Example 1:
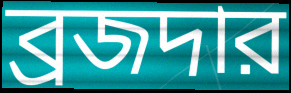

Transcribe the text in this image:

ব্রজদার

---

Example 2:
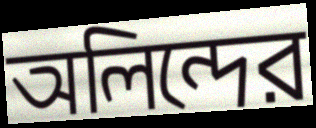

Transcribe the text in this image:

অলিন্দের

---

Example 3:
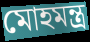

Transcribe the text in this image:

মোহমন্ত্র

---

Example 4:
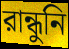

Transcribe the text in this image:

রান্ধুনি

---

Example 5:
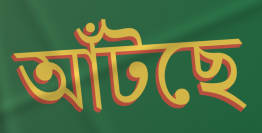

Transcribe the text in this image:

আঁটছে